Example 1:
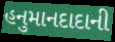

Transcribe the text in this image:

હનુમાનદાદાની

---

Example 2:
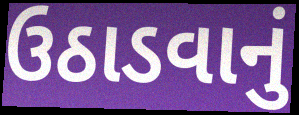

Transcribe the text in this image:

ઉઠાડવાનું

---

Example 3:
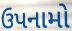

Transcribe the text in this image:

ઉપનામો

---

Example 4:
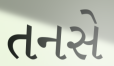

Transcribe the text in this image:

તનસે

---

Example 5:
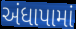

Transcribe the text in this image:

અંધાપામાં